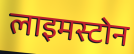
लाइमस्टोन